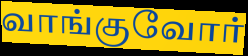
வாங்குவோர்